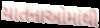
યાતનાઓમાંથી